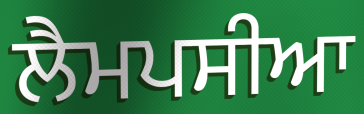
ਲੈਮਪਸੀਆ